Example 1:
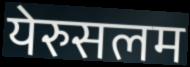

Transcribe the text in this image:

येरुसलम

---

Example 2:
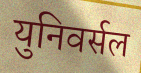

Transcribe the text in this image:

युनिवर्सल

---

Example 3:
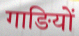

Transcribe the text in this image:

गाङियों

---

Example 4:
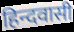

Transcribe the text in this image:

हिन्दवासी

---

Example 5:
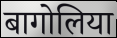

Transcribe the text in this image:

बागोलिया